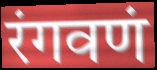
रंगवणं